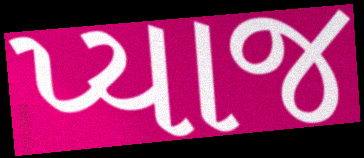
પ્યાજ